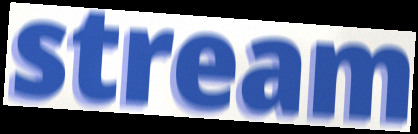
stream